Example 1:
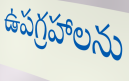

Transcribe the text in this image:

ఉపగ్రహాలను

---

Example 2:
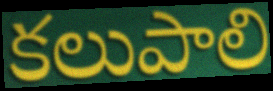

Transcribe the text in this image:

కలుపాలి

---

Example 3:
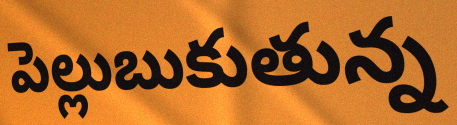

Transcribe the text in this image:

పెల్లుబుకుతున్న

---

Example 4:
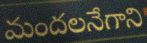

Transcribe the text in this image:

మందలనేగాని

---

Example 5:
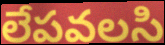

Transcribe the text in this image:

లేపవలసి